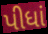
પીધાં